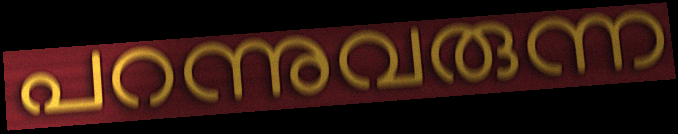
പറന്നുവരുന്ന